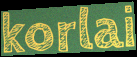
korlai